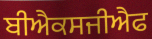
ਬੀਐਕਸਜੀਐਫ